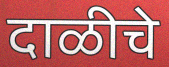
दाळीचे